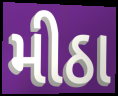
મીઠા